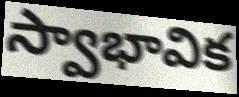
స్వాభావిక